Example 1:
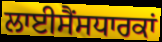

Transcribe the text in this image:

ਲਾਈਸੈਂਸਧਾਰਕਾਂ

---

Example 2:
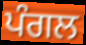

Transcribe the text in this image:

ਪੰਗਲ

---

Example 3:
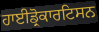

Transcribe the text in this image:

ਹਾਈਡ੍ਰੋਕਾਰਟਿਸਨ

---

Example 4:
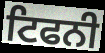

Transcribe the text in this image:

ਟਿਫਨੀ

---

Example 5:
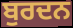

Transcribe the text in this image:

ਬੁਰਦਨ